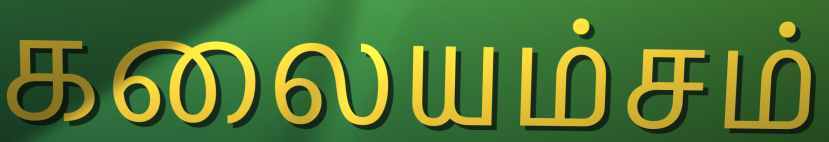
கலையம்சம்